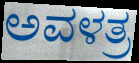
ಅವಳತ್ರ